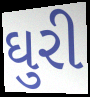
ઘુરી